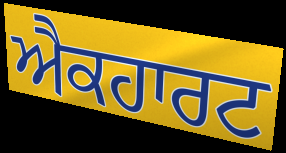
ਐਕਹਾਰਟ